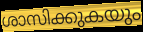
ശാസിക്കുകയും